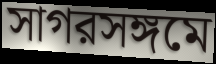
সাগরসঙ্গমে